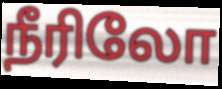
நீரிலோ